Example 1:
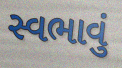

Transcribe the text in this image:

સ્વભાવું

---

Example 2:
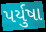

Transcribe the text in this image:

પર્યુષા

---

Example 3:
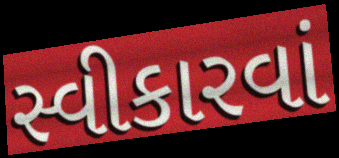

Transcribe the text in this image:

સ્વીકારવાં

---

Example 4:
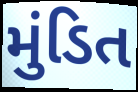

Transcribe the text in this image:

મુંડિત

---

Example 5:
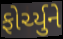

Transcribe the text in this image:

ફોર્ચ્યુને